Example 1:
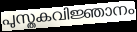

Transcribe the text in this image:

പുസ്തകവിജ്ഞാനം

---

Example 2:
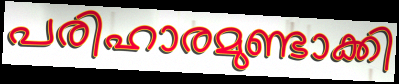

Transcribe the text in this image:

പരിഹാരമുണ്ടാക്കി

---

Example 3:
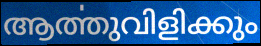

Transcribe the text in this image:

ആൎത്തുവിളിക്കും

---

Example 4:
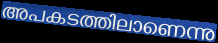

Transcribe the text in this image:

അപകടത്തിലാണെന്നു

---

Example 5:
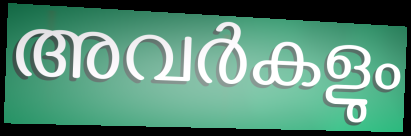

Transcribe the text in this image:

അവർകളും